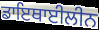
ਡਾਇਥਾਈਲੀਨ